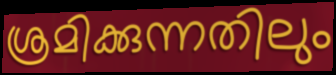
ശ്രമിക്കുന്നതിലും